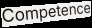
Competence